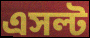
এসল্ট